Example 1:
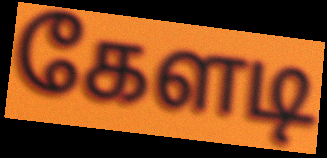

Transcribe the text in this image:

கேளடி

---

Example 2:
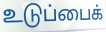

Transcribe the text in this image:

உடுப்பைக்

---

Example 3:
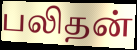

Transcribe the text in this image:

பலிதன்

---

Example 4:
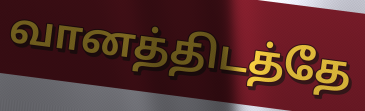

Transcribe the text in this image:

வானத்திடத்தே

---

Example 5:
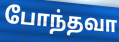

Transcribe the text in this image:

போந்தவா